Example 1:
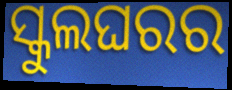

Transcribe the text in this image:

ସ୍କୁଲଘରର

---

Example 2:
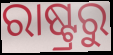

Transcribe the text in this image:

ରାଷ୍ଟ୍ରରୁ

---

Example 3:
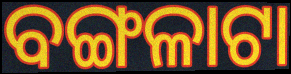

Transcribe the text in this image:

ବଙ୍ଗଳାଟା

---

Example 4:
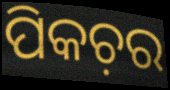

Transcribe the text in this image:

ପିକଚ଼ର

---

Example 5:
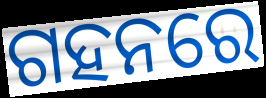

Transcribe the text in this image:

ଗହନରେ